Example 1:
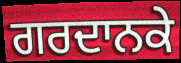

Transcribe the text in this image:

ਗਰਦਾਨਕੇ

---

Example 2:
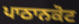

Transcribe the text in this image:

ਪਾਠਾਨਕੋਟ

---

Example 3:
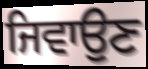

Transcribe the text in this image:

ਜਿਵਾਉਣ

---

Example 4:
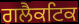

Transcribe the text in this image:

ਗਲੈਕਟਿਕ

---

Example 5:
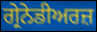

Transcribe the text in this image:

ਗ੍ਰੇਨੇਡੀਅਰਜ਼